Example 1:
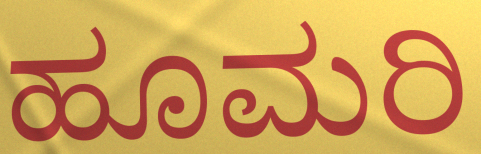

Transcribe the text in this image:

ಹೂಮರಿ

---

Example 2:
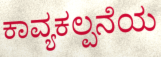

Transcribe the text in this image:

ಕಾವ್ಯಕಲ್ಪನೆಯ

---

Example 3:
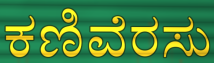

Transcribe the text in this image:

ಕಣಿವೆರಸು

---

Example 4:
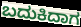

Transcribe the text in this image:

ಬದುಕಿದಾಗ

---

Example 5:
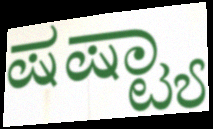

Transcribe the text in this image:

ಷಷ್ಟ್ಯಾ